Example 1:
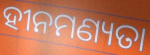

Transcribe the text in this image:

ହୀନମଣ୍ୟତା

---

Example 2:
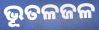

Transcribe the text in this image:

ଭୂତଳଜଳ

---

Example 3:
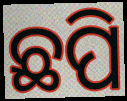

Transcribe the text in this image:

ଛପି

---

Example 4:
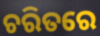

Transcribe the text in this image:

ଚରିତରେ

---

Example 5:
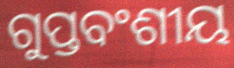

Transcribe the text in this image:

ଗୁପ୍ତବଂଶୀୟ